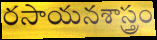
రసాయనశాస్త్రం